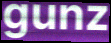
gunz